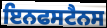
ਇਨਫਸਟੈਨਸ